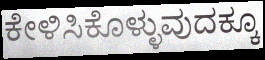
ಕೇಳಿಸಿಕೊಳ್ಳುವುದಕ್ಕೂ